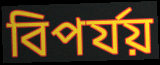
বিপৰ্যয়